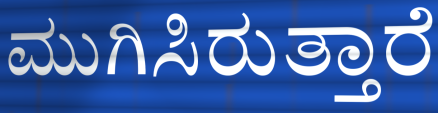
ಮುಗಿಸಿರುತ್ತಾರೆ